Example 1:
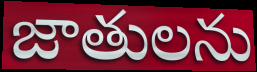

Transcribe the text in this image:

జాతులను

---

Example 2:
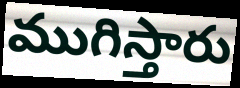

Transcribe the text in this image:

ముగిస్తారు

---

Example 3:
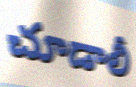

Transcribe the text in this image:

చూడాలీ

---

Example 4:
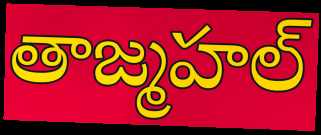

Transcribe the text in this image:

తాజ్మహల్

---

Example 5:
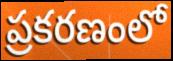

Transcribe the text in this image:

ప్రకరణంలో